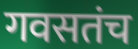
गवसतंच